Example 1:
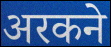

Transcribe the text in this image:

अरकने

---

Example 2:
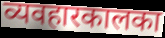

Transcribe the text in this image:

व्यवहारकालका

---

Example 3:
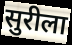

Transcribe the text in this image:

सुरीला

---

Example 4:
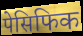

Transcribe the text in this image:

पेसिफिक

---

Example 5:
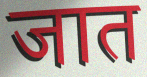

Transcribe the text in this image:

जात